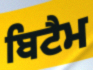
ਬਿਟੈਮ